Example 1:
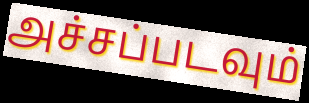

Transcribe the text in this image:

அச்சப்படவும்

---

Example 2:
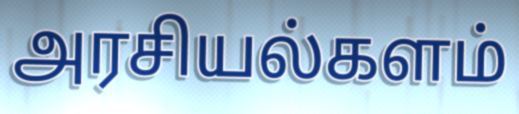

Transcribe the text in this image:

அரசியல்களம்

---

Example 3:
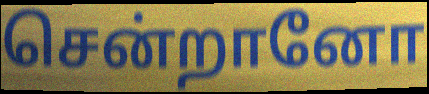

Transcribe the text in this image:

சென்றானோ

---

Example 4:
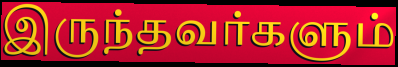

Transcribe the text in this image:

இருந்தவர்களும்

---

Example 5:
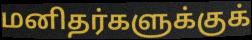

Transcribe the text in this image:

மனிதர்களுக்குக்